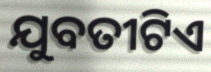
ଯୁବତୀଟିଏ